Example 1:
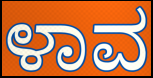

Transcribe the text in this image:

ಳಾವ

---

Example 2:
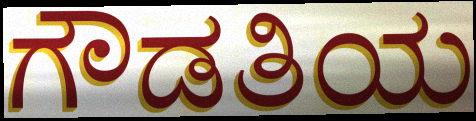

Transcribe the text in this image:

ಗೌಡತಿಯ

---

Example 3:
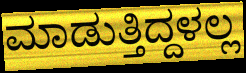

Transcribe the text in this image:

ಮಾಡುತ್ತಿದ್ದಳಲ್ಲ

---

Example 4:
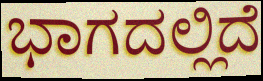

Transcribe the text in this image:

ಭಾಗದಲ್ಲಿದೆ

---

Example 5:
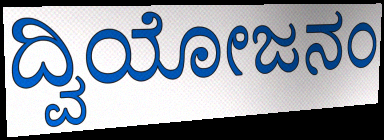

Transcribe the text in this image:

ದ್ವಿಯೋಜನಂ